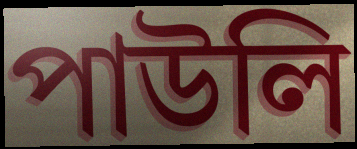
পাউলি